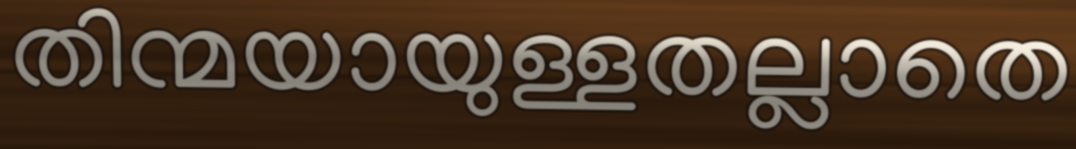
തിന്മയായുള്ളതല്ലാതെ